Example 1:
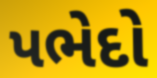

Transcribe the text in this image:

પભેદો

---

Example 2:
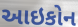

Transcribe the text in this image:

આઇકોન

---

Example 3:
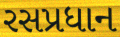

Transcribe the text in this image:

રસપ્રધાન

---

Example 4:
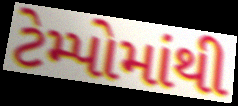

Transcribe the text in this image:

ટેમ્પોમાંથી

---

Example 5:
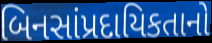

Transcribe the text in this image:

બિનસાંપ્રદાયિકતાનો